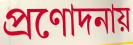
প্রণোদনায়